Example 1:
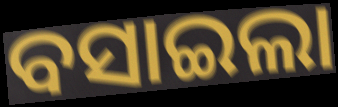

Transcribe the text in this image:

ବସାଇଲା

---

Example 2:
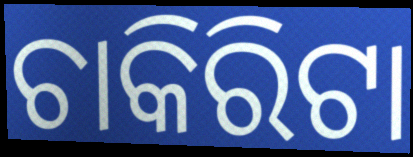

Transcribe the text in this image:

ଚାକିରିଟା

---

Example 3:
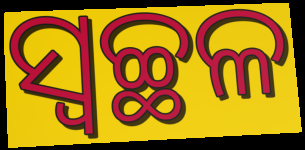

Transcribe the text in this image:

ସ୍ୱଚ୍ଛଳ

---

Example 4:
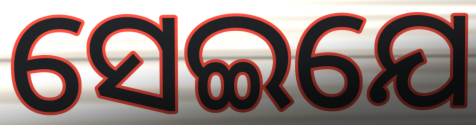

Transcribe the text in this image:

ସେଇଯେ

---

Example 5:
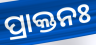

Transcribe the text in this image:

ପ୍ରାକ୍ତନଃ